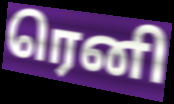
ரெனி